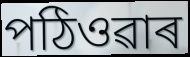
পঠিওৱাৰ